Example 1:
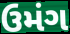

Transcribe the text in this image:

ઉમંગ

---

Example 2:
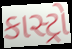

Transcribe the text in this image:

કાસ્ટ્રો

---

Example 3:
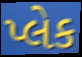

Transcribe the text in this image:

પ્લેક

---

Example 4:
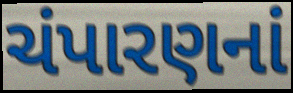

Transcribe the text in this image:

ચંપારણનાં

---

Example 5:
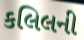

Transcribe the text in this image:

કલિલની